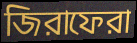
জিরাফেরা